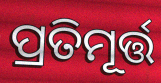
ପ୍ରତିମୂର୍ତ୍ତ